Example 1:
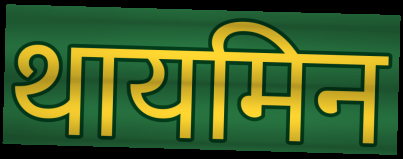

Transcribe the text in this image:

थायमिन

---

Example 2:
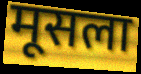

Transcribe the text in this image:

मूसला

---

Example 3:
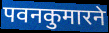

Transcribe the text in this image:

पवनकुमारने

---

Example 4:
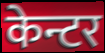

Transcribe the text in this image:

केन्टर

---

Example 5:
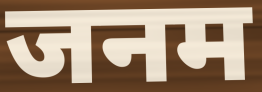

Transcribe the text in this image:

जनम